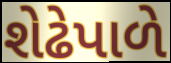
શેઢેપાળે